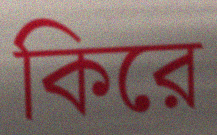
কিরে